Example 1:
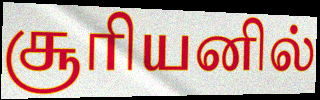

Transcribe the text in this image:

சூரியனில்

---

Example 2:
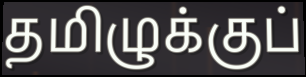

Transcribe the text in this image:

தமிழுக்குப்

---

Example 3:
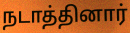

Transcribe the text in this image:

நடாத்தினார்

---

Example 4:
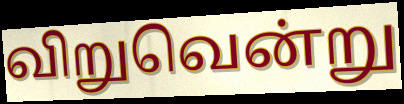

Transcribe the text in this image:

விறுவென்று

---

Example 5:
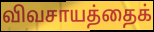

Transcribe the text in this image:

விவசாயத்தைக்